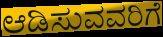
ಆಡಿಸುವವರಿಗೆ